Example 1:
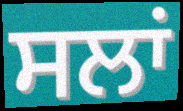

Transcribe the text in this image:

ਸਲਾਂ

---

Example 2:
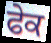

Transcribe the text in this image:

ਫੇਕ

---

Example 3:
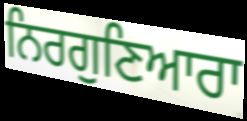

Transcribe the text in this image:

ਨਿਰਗੁਣਿਆਰਾ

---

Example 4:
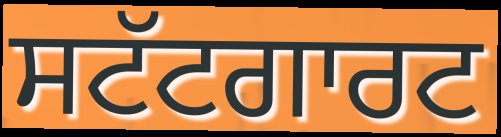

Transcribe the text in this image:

ਸਟੱਟਗਾਰਟ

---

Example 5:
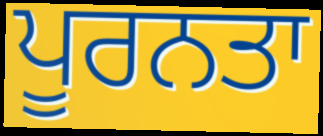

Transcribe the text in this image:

ਪੂਰਨਤਾ